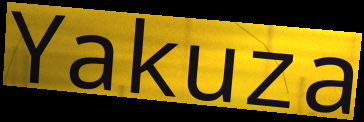
Yakuza